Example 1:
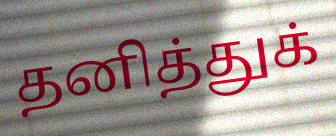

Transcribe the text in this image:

தனித்துக்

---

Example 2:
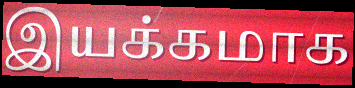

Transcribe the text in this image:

இயக்கமாக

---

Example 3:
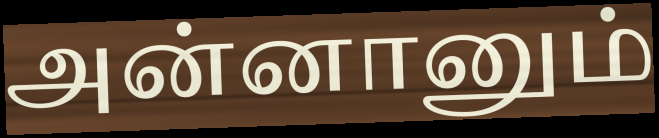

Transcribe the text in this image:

அன்னானும்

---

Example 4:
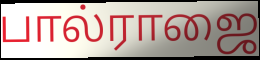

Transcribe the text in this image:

பால்ராஜை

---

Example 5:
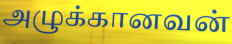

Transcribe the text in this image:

அழுக்கானவன்